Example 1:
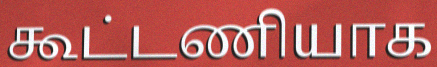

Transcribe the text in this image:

கூட்டணியாக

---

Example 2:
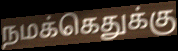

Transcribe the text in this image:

நமக்கெதுக்கு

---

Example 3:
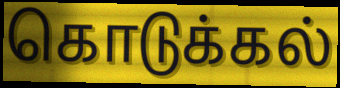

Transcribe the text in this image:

கொடுக்கல்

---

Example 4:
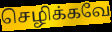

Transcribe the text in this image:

செழிக்கவே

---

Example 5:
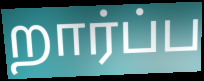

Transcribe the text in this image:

றார்ப்ப